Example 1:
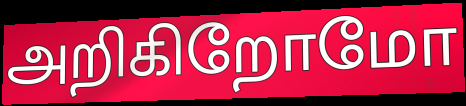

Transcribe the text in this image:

அறிகிறோமோ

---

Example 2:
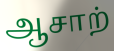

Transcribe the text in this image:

ஆசாற்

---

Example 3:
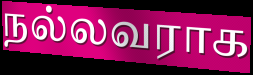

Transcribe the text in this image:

நல்லவராக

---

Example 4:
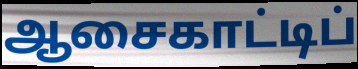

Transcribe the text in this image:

ஆசைகாட்டிப்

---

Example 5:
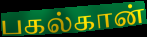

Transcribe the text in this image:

பகல்கான்